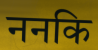
ननकि